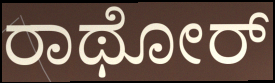
ರಾಥೋರ್